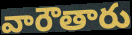
వారౌతారు